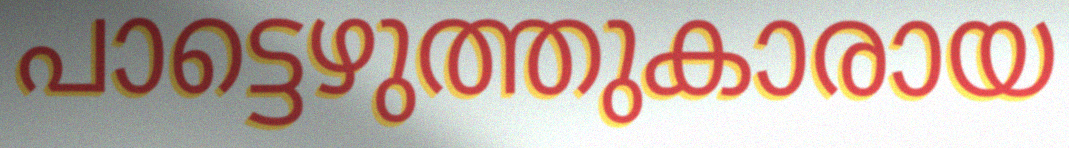
പാട്ടെഴുത്തുകാരായ